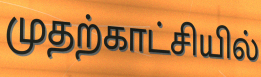
முதற்காட்சியில்